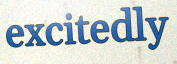
excitedly